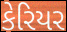
કેરિયર